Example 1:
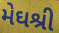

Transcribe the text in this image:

મેઘશ્રી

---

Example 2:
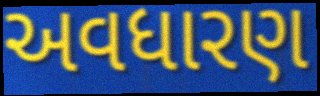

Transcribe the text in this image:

અવધારણ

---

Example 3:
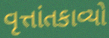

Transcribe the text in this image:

વૃત્તાંતકાવ્યો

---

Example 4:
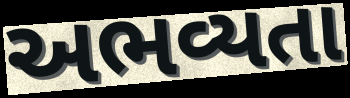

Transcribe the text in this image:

અભવ્યતા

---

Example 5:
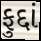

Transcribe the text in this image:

ફુદ્દાં